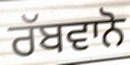
ਰੱਬਵਾਨੋ